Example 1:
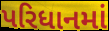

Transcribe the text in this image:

પરિધાનમાં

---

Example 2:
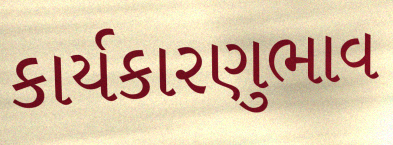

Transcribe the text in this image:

કાર્યકારણુભાવ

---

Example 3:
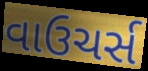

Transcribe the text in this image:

વાઉચર્સ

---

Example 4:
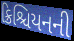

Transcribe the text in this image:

ક્રિશ્ચિયનની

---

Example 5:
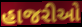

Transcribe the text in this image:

હાજરીઓ